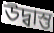
উদ্বাস্তু